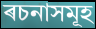
ৰচনাসমূহ